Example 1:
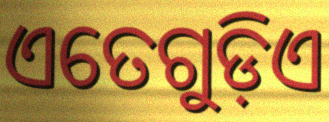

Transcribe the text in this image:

ଏତେଗୁଡ଼ିଏ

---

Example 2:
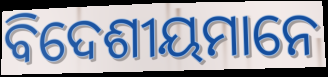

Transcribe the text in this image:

ବିଦେଶୀୟମାନେ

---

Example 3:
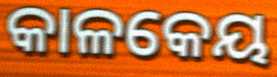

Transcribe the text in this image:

କାଳକେୟ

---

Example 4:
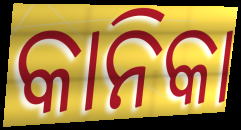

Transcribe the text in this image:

କାନିକା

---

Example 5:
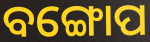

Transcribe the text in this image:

ବଙ୍ଗୋପ